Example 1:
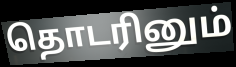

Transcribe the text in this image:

தொடரினும்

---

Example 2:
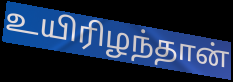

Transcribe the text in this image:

உயிரிழந்தான்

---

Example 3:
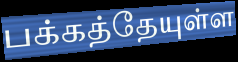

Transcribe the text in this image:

பக்கத்தேயுள்ள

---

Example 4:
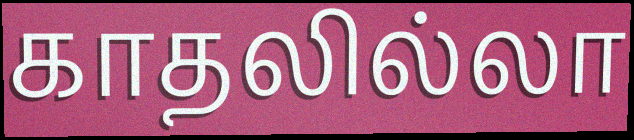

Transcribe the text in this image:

காதலில்லா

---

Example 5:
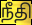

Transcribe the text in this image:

நீதி